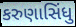
કરુણાસિંધુ